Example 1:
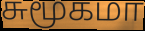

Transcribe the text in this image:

சுமூகமா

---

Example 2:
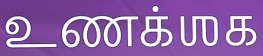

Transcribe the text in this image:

உணக்ஶக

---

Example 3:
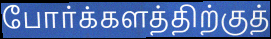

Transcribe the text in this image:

போர்க்களத்திற்குத்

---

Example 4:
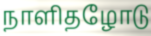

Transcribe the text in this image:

நாளிதழோடு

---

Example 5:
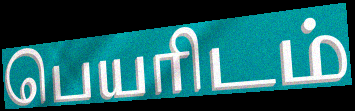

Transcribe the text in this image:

பெயரிடம்